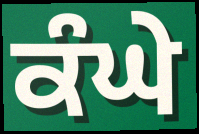
ਕੰਘੇ